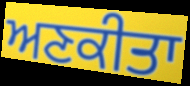
ਅਣਕੀਤਾ